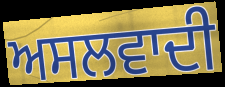
ਅਸਲਵਾਦੀ